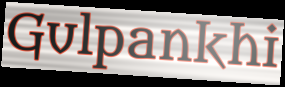
Gulpankhi